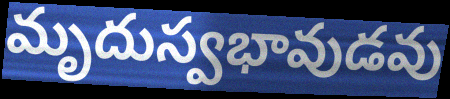
మృదుస్వభావుడవు